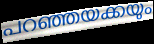
പറഞ്ഞയക്കയും